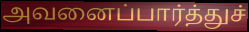
அவனைப்பார்த்துச்